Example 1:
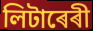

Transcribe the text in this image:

লিটাৰেৰী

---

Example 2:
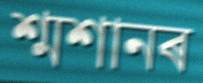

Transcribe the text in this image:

শ্মশানৰ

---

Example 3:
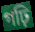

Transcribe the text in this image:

গঢ়ি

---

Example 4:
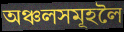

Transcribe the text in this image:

অঞ্চলসমূহলৈ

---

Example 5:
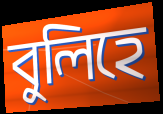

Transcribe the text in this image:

বুলিহে